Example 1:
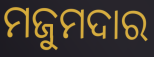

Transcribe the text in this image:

ମଜୁମଦାର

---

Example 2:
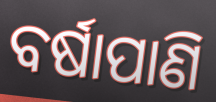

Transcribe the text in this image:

ବର୍ଷାପାଣି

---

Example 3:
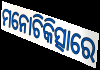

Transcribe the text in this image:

ମନୋଚିକିତ୍ସାରେ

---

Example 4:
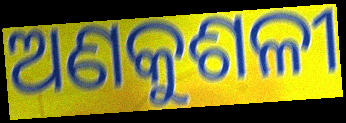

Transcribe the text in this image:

ଅଣକୁଶଳୀ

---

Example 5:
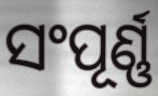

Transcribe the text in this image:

ସଂପୂର୍ଣ୍ଣ